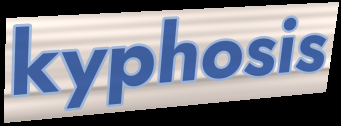
kyphosis